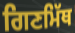
ਗਿਣਮਿੱਥ